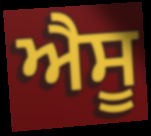
ਐਸੂ